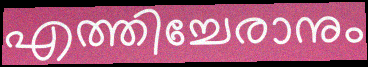
എത്തിച്ചേരാനും